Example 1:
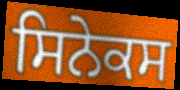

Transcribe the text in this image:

ਸਿਨੇਕਸ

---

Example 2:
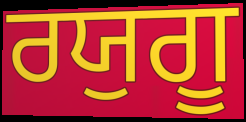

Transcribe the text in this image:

ਰਯੁਗੂ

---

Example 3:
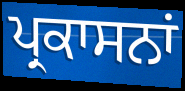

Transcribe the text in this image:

ਪ੍ਰਕਾਸਨਾਂ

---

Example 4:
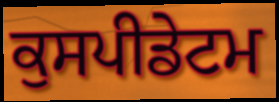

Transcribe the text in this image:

ਕੁਸਪੀਡੇਟਮ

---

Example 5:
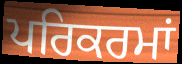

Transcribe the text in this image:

ਪਰਿਕਰਮਾਂ